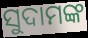
ସୁଦାମଙ୍କ